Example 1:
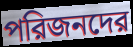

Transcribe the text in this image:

পরিজনদের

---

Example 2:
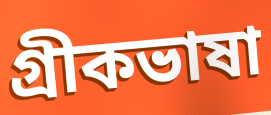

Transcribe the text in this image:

গ্রীকভাষা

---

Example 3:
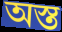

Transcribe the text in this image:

অস্ত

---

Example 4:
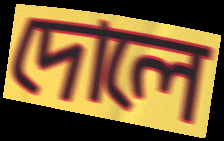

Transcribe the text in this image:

দোলে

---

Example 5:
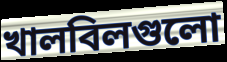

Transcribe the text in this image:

খালবিলগুলো